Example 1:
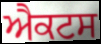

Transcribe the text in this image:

ਐਕਟਸ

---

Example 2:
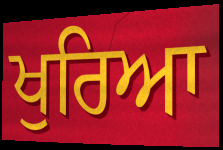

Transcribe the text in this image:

ਖੁਰਿਆ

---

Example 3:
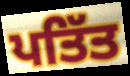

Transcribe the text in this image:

ਪਤਿੱਤ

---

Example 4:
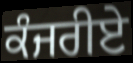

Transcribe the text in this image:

ਕੰਜਰੀਏ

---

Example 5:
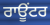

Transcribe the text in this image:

ਰਾਊਂਟਰ